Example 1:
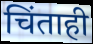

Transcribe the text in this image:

चिंताही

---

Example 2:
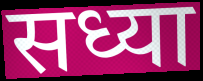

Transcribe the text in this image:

सध्या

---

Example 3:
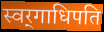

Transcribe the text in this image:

स्वर्गाधिपति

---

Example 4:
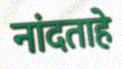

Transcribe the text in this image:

नांदताहे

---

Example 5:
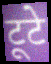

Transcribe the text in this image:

टूटे